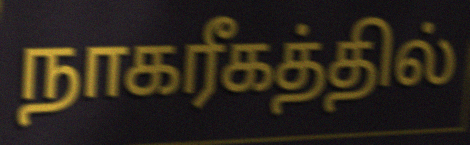
நாகரீகத்தில்